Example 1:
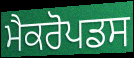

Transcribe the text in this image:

ਮੈਕਰੋਪਡਸ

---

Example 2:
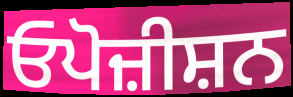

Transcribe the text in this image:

ਓਪੋਜ਼ੀਸ਼ਨ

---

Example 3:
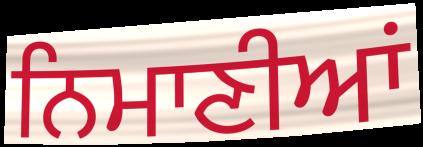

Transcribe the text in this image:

ਨਿਮਾਣੀਆਂ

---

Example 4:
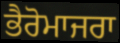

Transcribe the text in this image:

ਭੈਰੋਮਾਜਰਾ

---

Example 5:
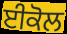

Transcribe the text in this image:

ਈਕੋਲ